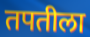
तपतीला